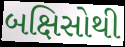
બક્ષિસોથી